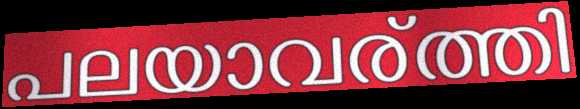
പലയാവര്ത്തി